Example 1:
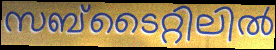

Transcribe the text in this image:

സബ്ടൈറ്റിലിൽ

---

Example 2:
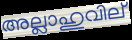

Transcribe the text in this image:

അല്ലാഹുവില്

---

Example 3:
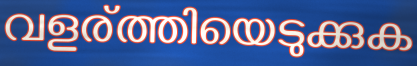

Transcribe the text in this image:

വളര്ത്തിയെടുക്കുക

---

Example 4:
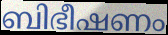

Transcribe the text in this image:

ബിഭീഷണം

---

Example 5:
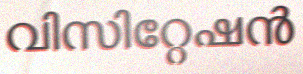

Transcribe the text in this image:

വിസിറ്റേഷൻ